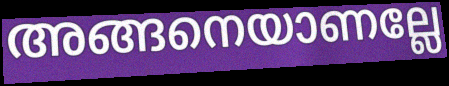
അങ്ങനെയാണല്ലേ